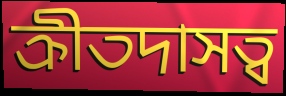
ক্রীতদাসত্ব